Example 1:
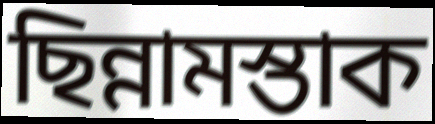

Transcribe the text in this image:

ছিন্নামস্তাক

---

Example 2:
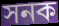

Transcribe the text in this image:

সনক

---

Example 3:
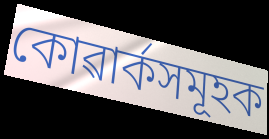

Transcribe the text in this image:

কোৱাৰ্কসমূহক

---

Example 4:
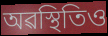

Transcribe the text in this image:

অৱস্থিতিও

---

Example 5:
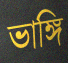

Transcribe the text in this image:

ভাঙ্গি